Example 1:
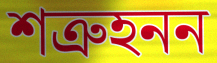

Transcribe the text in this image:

শত্রুহনন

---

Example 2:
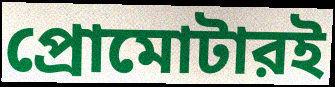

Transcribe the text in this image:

প্রোমোটারই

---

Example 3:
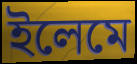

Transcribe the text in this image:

ইলেমে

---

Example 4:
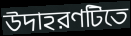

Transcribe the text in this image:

উদাহরণটিতে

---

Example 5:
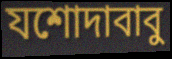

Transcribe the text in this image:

যশোদাবাবু